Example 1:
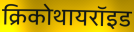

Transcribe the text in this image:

क्रिकोथायरॉइड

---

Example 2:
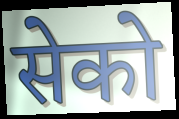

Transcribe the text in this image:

सेको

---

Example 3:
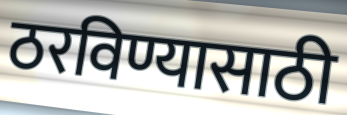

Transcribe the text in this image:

ठरविण्यासाठी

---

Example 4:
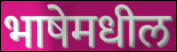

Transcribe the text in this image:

भाषेमधील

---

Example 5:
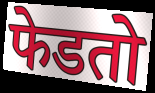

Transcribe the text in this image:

फेडतो